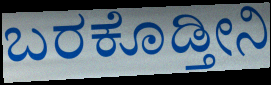
ಬರಕೊಡ್ತೀನಿ